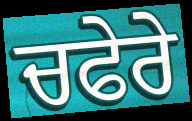
ਚਫੇਰੇ